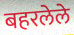
बहरलेले